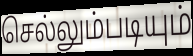
செல்லும்படியும்